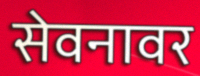
सेवनावर